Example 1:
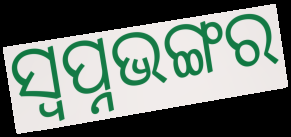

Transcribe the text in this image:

ସ୍ୱପ୍ନଭଙ୍ଗର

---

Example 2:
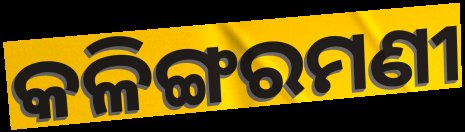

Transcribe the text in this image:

କଳିଙ୍ଗରମଣୀ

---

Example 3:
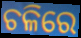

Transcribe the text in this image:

ଚଳିରେ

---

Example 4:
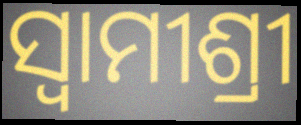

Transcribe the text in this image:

ସ୍ଵାମୀଶ୍ରୀ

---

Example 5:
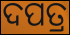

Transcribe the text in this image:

ଦପତ୍ର